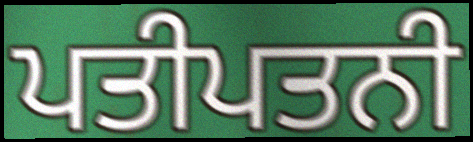
ਪਤੀਪਤਨੀ